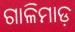
ଗାଳିମାଡ଼